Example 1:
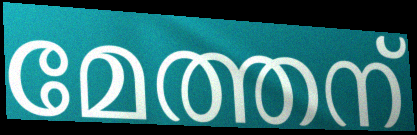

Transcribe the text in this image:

മേത്തന്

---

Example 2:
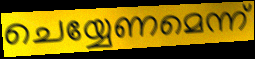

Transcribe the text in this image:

ചെയ്യേണമെന്ന്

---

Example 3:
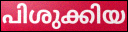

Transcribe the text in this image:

പിശുക്കിയ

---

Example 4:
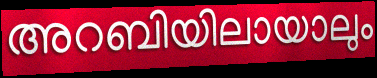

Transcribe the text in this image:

അറബിയിലായാലും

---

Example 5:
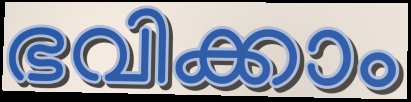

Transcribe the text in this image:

ഭവിക്കാം